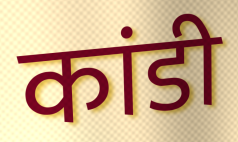
कांडी